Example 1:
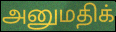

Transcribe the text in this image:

அனுமதிக்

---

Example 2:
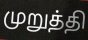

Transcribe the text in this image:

முறுத்தி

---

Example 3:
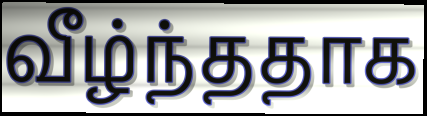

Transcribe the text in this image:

வீழ்ந்ததாக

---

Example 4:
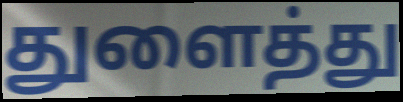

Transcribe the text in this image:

துளைத்து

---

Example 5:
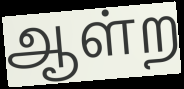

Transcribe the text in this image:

ஆள்ற